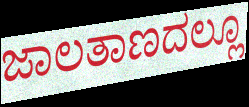
ಜಾಲತಾಣದಲ್ಲೂ